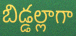
బిడ్డల్లాగా